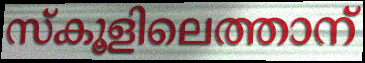
സ്കൂളിലെത്താന്